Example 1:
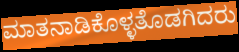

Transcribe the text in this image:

ಮಾತನಾಡಿಕೊಳ್ಳತೊಡಗಿದರು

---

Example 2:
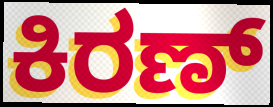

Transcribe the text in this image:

ಕಿರಣ್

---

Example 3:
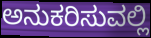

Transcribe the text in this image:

ಅನುಕರಿಸುವಲ್ಲಿ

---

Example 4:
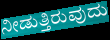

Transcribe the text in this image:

ನೀಡುತ್ತಿರುವುದು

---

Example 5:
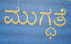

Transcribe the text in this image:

ಮುಗ್ಧತೆ